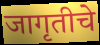
जागृतीचे